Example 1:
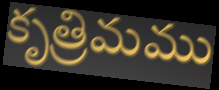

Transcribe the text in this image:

కృత్రిమము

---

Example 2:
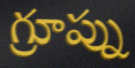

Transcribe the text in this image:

గ్రూప్ను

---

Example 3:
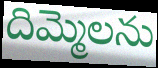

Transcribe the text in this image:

దిమ్మెలను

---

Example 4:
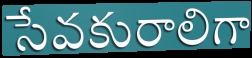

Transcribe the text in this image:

సేవకురాలిగా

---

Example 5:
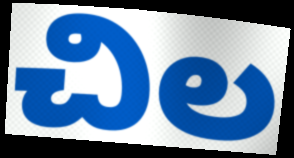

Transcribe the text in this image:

చిల